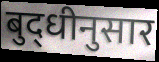
बुद्धीनुसार